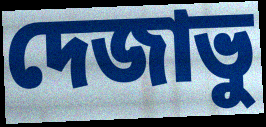
দেজাভু